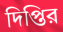
দিপ্তির